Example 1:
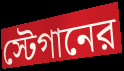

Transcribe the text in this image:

স্টেগানের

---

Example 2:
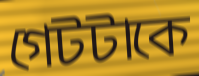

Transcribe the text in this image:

গেটটাকে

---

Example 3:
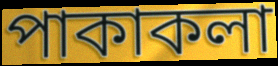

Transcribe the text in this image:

পাকাকলা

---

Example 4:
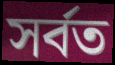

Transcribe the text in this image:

সর্বত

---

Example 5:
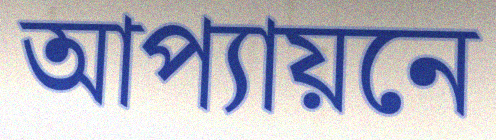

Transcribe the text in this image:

আপ্যায়নে